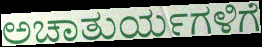
ಅಚಾತುರ್ಯಗಳಿಗೆ